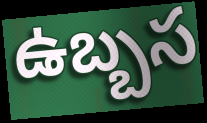
ఉబ్బస